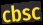
cbsc